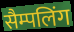
सैम्पलिंग